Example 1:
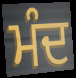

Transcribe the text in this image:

ਮੰਦ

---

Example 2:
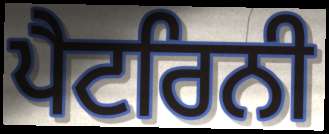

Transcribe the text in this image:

ਪੈਟਰਿਨੀ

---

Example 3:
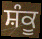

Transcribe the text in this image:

ਸ਼ੰਕੂ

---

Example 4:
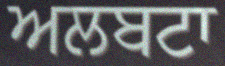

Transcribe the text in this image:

ਅਲਬਟਾ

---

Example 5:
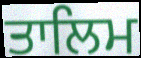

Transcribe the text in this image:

ਤਾਲਿਮ